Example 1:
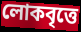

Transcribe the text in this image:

লোকবৃত্তে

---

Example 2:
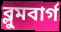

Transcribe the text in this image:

ব্লুমবার্গ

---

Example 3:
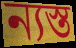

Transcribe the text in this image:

ন্যস্ত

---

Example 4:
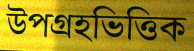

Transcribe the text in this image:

উপগ্রহভিত্তিক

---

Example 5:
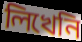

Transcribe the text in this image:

লিখেনি